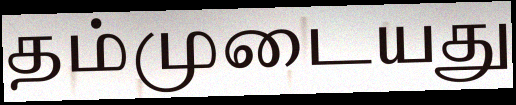
தம்முடையது